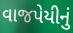
વાજપેયીનું